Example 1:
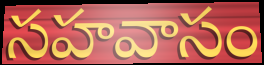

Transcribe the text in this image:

సహవాసం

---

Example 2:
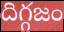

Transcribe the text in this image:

దిగ్గజం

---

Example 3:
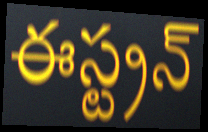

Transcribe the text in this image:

ఈస్ట్రన్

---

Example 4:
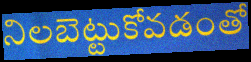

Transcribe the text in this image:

నిలబెట్టుకోవడంతో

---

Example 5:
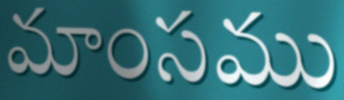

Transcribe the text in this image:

మాంసము